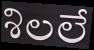
శిలలే